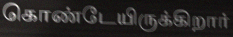
கொண்டேயிருக்கிறார்